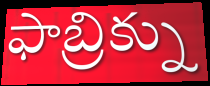
ఫాబ్రిక్ను